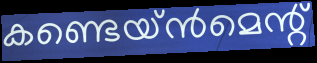
കണ്ടെയ്ൻമെന്റ്